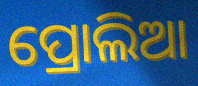
ପ୍ରୋଲିଆ